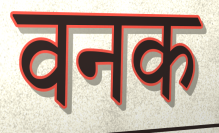
वनक